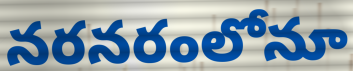
నరనరంలోనూ